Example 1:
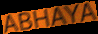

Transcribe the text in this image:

ABHAYA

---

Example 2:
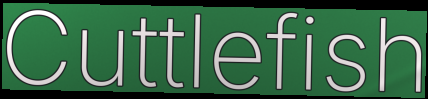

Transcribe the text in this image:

Cuttlefish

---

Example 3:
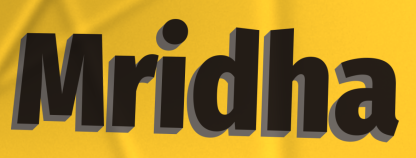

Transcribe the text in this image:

Mridha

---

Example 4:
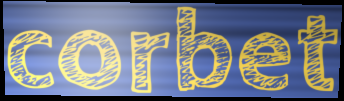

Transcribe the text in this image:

corbet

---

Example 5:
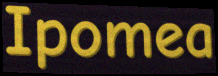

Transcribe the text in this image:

Ipomea